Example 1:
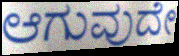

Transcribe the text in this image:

ಆಗುವುದೇ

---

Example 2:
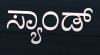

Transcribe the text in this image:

ಸ್ಯಾಂಡ್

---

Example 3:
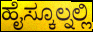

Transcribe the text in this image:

ಹೈಸ್ಕೂಲ್ನಲ್ಲಿ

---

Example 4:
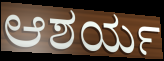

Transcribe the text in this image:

ಆಶರ್ಯ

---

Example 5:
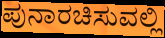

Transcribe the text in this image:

ಪುನಾರಚಿಸುವಲ್ಲಿ